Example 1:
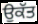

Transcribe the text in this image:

ਉਕੱਤ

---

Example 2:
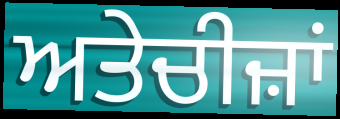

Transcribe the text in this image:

ਅਤੇਚੀਜ਼ਾਂ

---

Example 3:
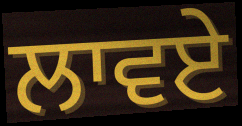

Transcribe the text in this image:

ਲਾਵਏ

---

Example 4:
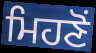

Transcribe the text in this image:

ਮਿਹਣੋਂ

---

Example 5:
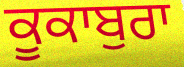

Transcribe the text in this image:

ਕੂਕਾਬੁਰਾ